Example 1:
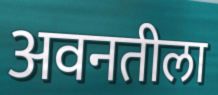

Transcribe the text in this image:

अवनतीला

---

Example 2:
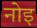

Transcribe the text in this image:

नोइ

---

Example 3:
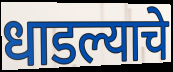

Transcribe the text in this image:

धाडल्याचे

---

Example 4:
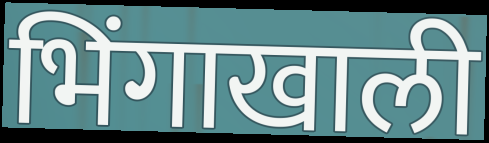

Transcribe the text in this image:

भिंगाखाली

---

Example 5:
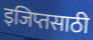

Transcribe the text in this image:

इजिप्तसाठी